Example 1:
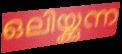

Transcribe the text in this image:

ഒലിയ്ക്കുന്ന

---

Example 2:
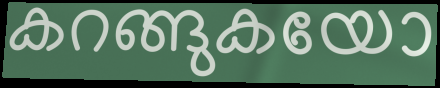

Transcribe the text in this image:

കറങ്ങുകയോ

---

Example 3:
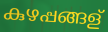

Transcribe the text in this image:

കുഴപ്പങ്ങള്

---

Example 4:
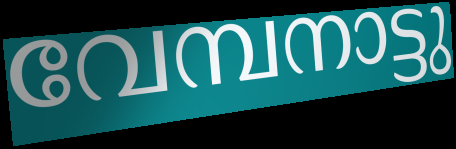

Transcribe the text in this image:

വേമ്പനാട്ടു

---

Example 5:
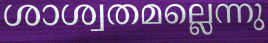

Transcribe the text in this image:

ശാശ്വതമല്ലെന്നു